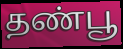
தண்பூ